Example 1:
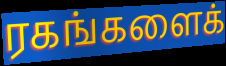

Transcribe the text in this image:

ரகங்களைக்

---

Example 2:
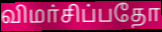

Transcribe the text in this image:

விமர்சிப்பதோ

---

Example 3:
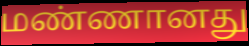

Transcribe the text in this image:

மண்ணானது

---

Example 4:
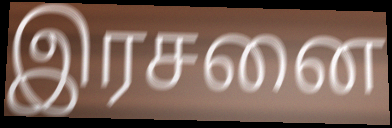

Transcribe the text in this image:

இரசனை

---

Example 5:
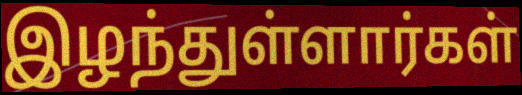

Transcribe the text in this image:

இழந்துள்ளார்கள்